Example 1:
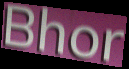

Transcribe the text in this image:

Bhor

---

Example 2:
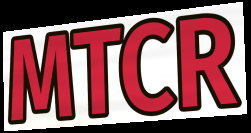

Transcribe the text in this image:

MTCR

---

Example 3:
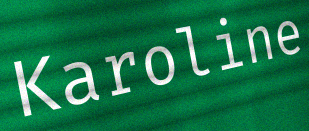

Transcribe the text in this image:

Karoline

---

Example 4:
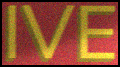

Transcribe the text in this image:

IVE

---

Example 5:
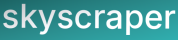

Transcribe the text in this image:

skyscraper